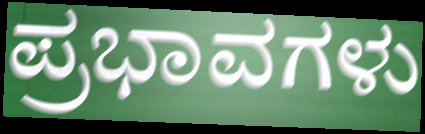
ಪ್ರಭಾವಗಳು